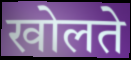
खोलते